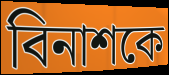
বিনাশকে